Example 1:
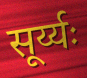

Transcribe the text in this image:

सूर्य्यः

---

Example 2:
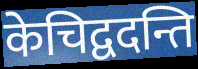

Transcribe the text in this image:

केचिद्वदन्ति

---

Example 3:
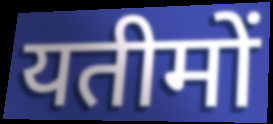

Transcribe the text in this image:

यतीमों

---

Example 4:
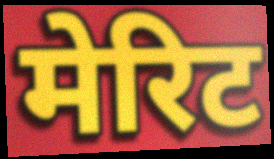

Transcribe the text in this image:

मेरिट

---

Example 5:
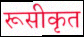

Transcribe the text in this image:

रूसीकृत